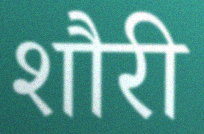
शौरी